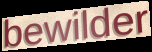
bewilder